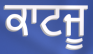
ਕਾਟਜੂ